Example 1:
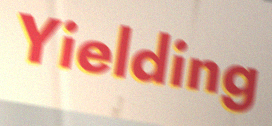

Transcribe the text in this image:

Yielding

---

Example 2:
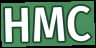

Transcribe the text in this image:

HMC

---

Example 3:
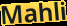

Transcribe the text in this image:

Mahli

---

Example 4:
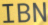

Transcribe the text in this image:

IBN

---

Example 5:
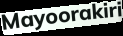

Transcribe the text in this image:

Mayoorakiri